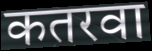
कतरवा